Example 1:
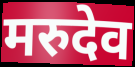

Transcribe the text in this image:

मरुदेव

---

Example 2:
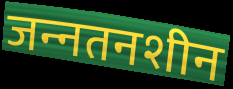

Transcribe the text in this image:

जन्नतनशीन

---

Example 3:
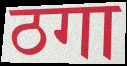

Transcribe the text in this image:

ठगा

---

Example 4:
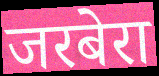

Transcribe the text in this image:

जरबेरा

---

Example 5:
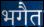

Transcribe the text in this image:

भगैत